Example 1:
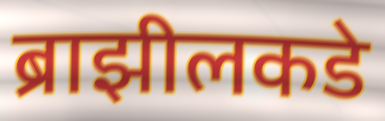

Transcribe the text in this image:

ब्राझीलकडे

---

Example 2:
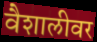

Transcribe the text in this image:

वैशालीवर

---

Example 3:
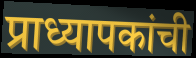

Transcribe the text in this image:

प्राध्यापकांची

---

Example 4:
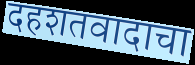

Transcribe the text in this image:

दहशतवादाचा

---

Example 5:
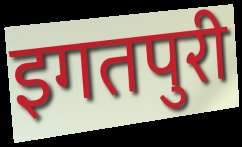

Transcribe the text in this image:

इगतपुरी